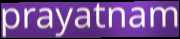
prayatnam